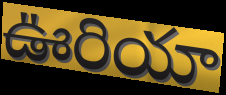
ఊరియా